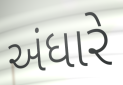
અંધારે